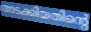
അടക്കിയതിന്റെ